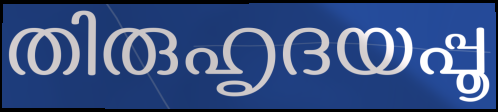
തിരുഹൃദയപ്പൂ